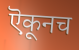
ऎकूनच